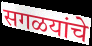
सगळयांचे